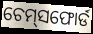
ଚେମ୍‌ସଫୋର୍ଡ